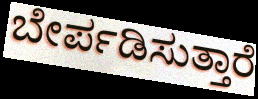
ಬೇರ್ಪಡಿಸುತ್ತಾರೆ